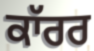
ਕਾੱਰਰ